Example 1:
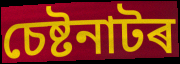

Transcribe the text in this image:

চেষ্টনাটৰ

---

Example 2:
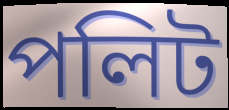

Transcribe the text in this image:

পলিট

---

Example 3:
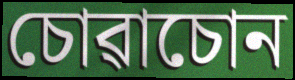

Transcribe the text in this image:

চোৱাচোন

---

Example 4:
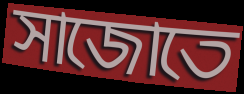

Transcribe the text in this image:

সাজোতে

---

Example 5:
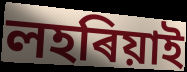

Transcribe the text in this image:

লহৰিয়াই